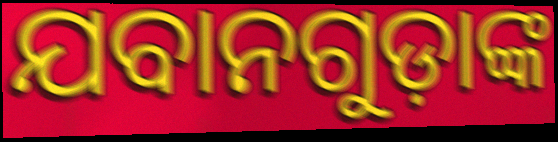
ଯବାନଗୁଡ଼ାଙ୍କ